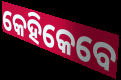
କେହିକେବେ